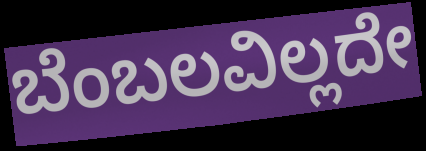
ಬೆಂಬಲವಿಲ್ಲದೇ